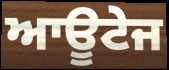
ਆਊਟੇਜ